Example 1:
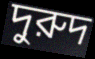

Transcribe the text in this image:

দুরুদ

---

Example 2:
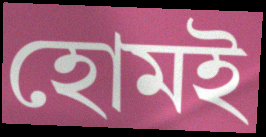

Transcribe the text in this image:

হোমই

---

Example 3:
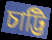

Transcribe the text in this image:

চাট্টি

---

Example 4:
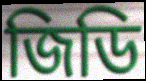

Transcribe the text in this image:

জিডি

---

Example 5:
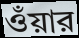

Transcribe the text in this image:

ওঁয়ার